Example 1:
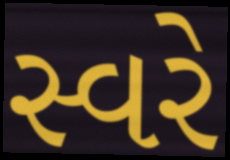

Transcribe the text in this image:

સ્વરે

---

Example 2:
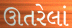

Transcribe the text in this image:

ઊતરેલાં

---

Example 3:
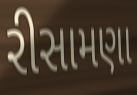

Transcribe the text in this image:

રીસામણા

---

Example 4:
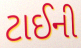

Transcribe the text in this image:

ટાઈની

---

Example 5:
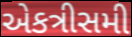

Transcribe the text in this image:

એકત્રીસમી